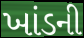
ખાંડની